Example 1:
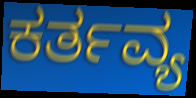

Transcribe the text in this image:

ಕರ್ತವ್ಯ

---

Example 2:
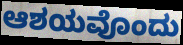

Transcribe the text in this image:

ಆಶಯವೊಂದು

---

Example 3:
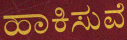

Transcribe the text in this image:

ಹಾಕಿಸುವೆ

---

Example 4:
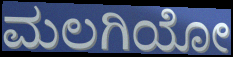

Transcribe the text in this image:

ಮಲಗಿಯೋ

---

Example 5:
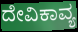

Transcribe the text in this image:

ದೇವಿಕಾವ್ಯ